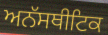
ਅਨੱਸਥੀਟਿਕ